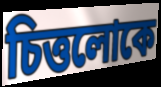
চিত্তলোকে